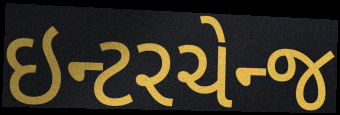
ઇન્ટરચેન્જ